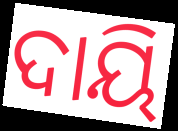
ଦାୟି